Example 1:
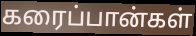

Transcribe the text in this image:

கரைப்பான்கள்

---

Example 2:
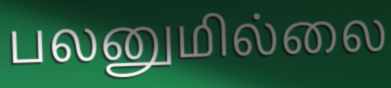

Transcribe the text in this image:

பலனுமில்லை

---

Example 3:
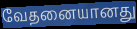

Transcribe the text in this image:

வேதனையானது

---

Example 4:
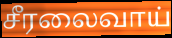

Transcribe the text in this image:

சீரலைவாய்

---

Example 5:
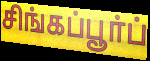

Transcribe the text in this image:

சிங்கப்பூர்ப்